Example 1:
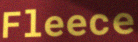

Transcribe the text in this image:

Fleece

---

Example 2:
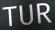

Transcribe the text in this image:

TUR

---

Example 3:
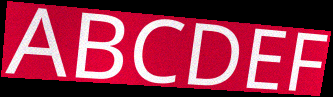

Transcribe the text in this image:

ABCDEF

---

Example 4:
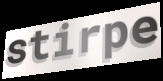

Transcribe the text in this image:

stirpe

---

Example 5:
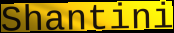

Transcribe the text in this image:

Shantini